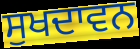
ਸੁਖਦਾਵਨ